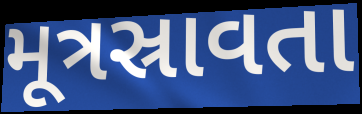
મૂત્રસ્રાવતા